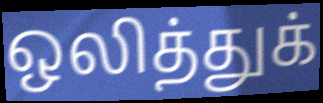
ஒலித்துக்